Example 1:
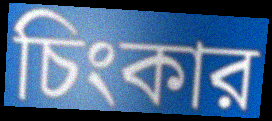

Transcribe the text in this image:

চিংকার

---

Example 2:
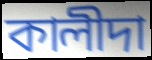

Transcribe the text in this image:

কালীদা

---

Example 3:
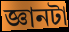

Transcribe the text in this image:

জ্ঞানটা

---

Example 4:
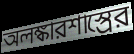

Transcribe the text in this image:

অলঙ্কারশাস্ত্রের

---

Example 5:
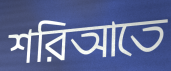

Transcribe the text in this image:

শরিআতে